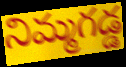
నిమ్మగడ్డ